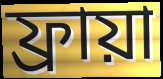
ফ্রায়া